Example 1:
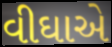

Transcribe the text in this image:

વીઘાએ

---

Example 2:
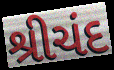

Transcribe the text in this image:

શ્રીચંદ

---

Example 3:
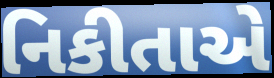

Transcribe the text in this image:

નિકીતાએ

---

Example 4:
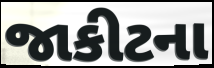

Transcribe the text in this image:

જાકીટના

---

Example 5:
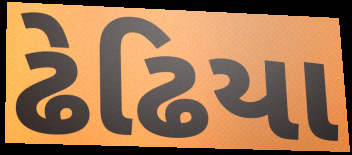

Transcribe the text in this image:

ઢેઢિયા